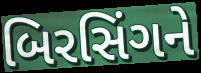
બિરસિંગને